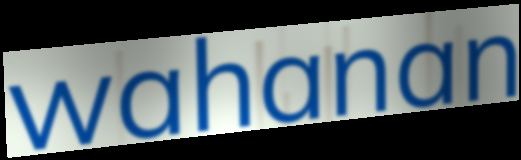
wahanan